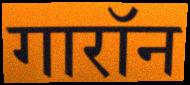
गारॉन